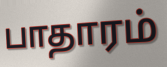
பாதாரம்